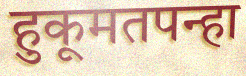
हुकूमतपन्हा